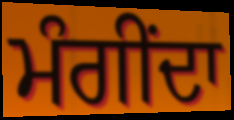
ਮੰਗੀਂਦਾ